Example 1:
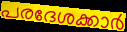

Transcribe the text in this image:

പരദേശക്കാർ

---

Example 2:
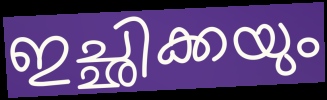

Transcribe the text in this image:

ഇച്ഛിക്കയും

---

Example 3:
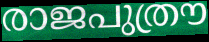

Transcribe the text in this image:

രാജപുത്രൗ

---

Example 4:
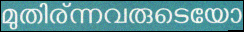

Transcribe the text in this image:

മുതിര്ന്നവരുടെയോ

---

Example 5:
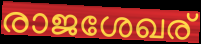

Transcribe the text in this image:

രാജശേഖര്